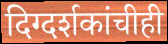
दिग्दर्शकांचीही